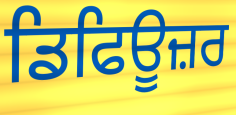
ਡਿਫਿਊਜ਼ਰ